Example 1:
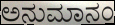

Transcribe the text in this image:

ಅನುಮಾನಂ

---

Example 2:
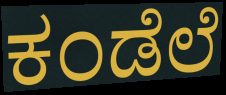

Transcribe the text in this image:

ಕಂಡೆಲೆ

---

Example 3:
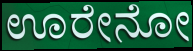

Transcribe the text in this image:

ಊರೇನೋ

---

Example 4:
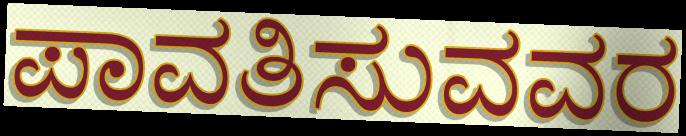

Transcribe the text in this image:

ಪಾವತಿಸುವವರ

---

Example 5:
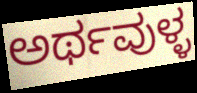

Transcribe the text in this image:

ಅರ್ಥವುಳ್ಳ